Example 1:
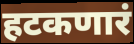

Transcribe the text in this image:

हटकणारं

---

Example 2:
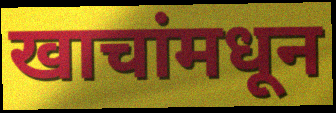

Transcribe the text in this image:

खाचांमधून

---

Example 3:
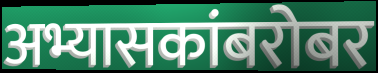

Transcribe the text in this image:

अभ्यासकांबरोबर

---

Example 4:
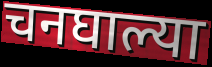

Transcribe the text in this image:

चनघाल्या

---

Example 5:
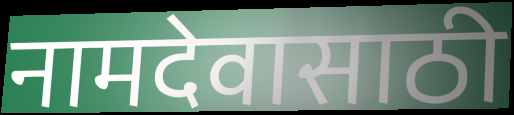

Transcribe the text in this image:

नामदेवासाठी